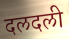
दलदली